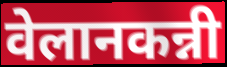
वेलानकन्नी